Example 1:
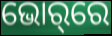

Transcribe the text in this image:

ଭୋର୍‌ରେ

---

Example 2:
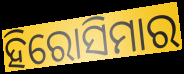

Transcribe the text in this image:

ହିରୋସିମାର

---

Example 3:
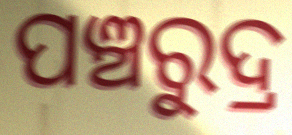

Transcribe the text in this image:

ପଞ୍ଚରୁଦ୍ର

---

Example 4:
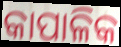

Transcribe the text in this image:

କାପାଳିକ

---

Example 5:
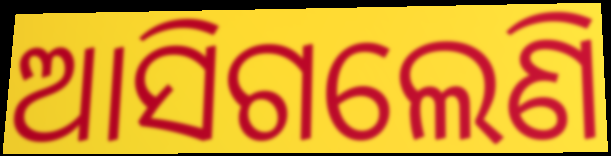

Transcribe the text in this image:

ଆସିଗଲେଣି